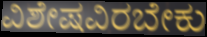
ವಿಶೇಷವಿರಬೇಕು